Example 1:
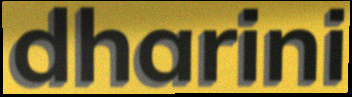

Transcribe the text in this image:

dharini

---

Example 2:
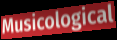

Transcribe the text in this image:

Musicological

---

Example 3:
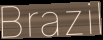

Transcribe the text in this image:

Brazil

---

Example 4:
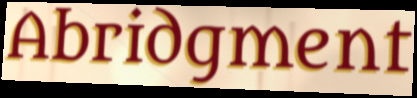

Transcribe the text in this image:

Abridgment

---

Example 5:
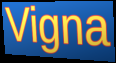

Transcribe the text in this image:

Vigna